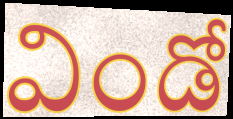
విండో